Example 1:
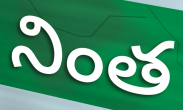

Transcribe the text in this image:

నింత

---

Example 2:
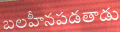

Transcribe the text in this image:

బలహీనపడతాడు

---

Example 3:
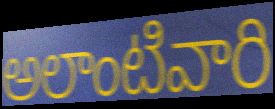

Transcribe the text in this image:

అలాంటివారి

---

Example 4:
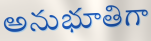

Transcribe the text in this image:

అనుభూతిగా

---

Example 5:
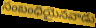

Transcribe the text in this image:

సంబంధియైనవాడు